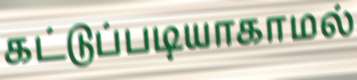
கட்டுப்படியாகாமல்